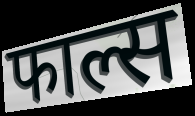
फाल्स